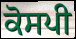
ਕੋਸਪੀ